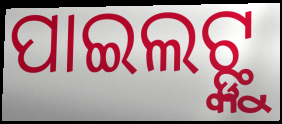
ପାଇଲଟ୍ଙ୍କୁ